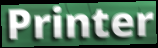
Printer